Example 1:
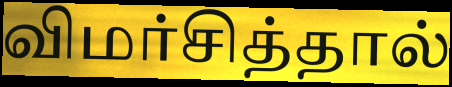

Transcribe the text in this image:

விமர்சித்தால்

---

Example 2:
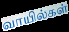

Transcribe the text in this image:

வாயில்கள்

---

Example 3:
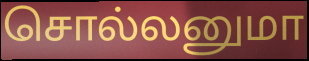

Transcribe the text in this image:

சொல்லனுமா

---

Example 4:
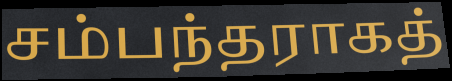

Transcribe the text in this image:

சம்பந்தராகத்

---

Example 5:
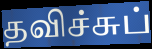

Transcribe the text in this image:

தவிச்சுப்